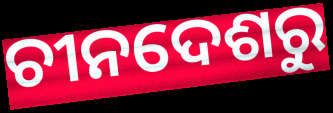
ଚୀନଦେଶରୁ